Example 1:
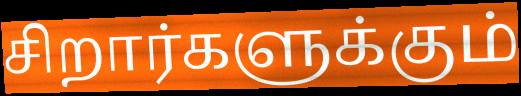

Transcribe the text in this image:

சிறார்களுக்கும்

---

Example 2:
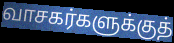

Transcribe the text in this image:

வாசகர்களுக்குத்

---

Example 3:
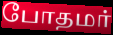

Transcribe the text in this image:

போதமர்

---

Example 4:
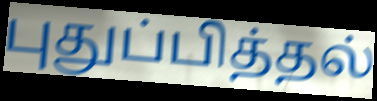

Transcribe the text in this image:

புதுப்பித்தல்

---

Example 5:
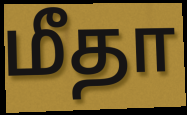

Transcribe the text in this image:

மீதா